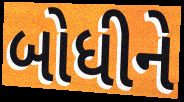
બોધીને